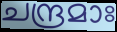
ചന്ദ്രമാഃ